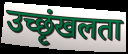
उच्छृंखलता